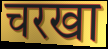
चरखा